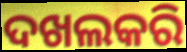
ଦଖଲକରି